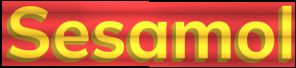
Sesamol